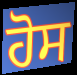
ਹੋਸ